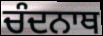
ਚੰਦਨਾਥ